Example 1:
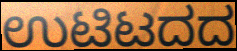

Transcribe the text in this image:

ಉಟಿಟದದ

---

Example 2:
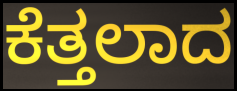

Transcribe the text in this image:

ಕೆತ್ತಲಾದ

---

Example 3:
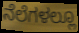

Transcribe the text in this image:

ನೆಲೆಗಳಲ್ಲೂ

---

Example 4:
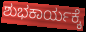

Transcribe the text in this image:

ಶುಭಕಾರ್ಯಕ್ಕೆ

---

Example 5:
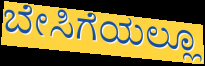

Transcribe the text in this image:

ಬೇಸಿಗೆಯಲ್ಲೂ